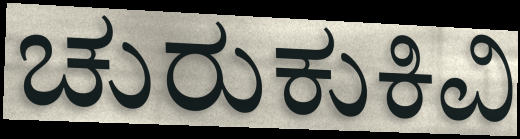
ಚುರುಕುಕಿವಿ